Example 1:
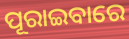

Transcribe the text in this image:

ପୂରାଇବାରେ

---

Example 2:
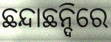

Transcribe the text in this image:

ଛନ୍ଦାଛନ୍ଦିରେ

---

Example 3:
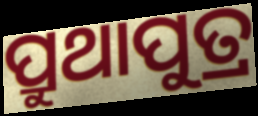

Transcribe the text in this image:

ପ୍ରୁଥାପୁତ୍ର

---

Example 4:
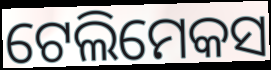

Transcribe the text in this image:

ଟେଲିମେକସ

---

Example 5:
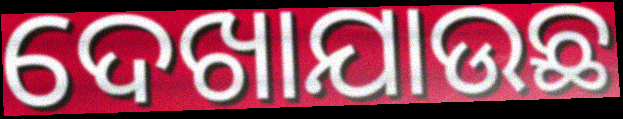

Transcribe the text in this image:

ଦେଖାଯାଉଛ